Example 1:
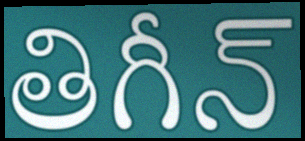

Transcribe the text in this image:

తిగీన్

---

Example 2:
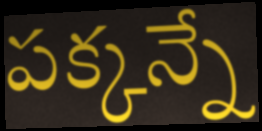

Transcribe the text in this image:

పక్కన్నే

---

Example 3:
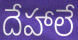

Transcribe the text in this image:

దేహాలే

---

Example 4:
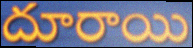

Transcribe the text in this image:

దూరాయి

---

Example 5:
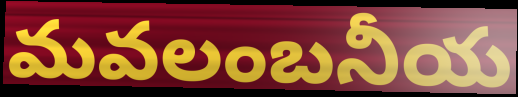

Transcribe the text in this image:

మవలంబనీయ